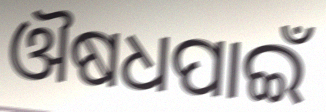
ଔଷଧପାଇଁ